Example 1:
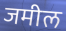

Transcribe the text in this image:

जमील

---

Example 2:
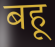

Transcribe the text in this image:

बहू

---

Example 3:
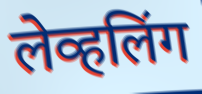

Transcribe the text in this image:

लेव्हलिंग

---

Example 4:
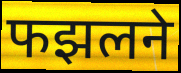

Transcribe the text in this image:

फझलने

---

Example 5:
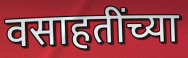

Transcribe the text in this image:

वसाहतींच्या